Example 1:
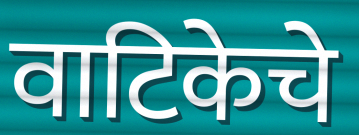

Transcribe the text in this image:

वाटिकेचे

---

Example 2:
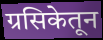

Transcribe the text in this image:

ग्रसिकेतून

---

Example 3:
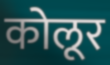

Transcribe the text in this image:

कोलूर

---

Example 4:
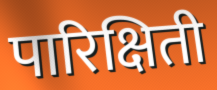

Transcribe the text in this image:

पारिक्षिती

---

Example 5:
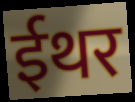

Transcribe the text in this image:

ईथर